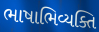
ભાષાભિવ્યક્તિ